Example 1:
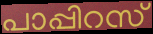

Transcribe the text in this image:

പാപ്പിറസ്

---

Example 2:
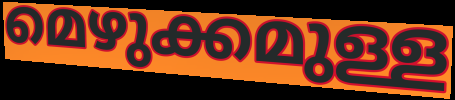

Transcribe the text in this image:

മെഴുക്കമുള്ള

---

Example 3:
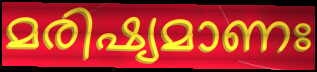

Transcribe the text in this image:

മരിഷ്യമാണഃ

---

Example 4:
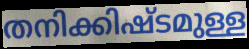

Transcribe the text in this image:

തനിക്കിഷ്ടമുള്ള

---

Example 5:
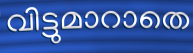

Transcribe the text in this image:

വിട്ടുമാറാതെ